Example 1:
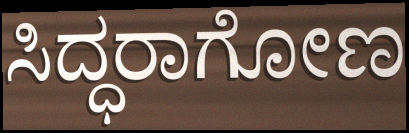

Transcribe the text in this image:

ಸಿದ್ಧರಾಗೋಣ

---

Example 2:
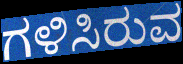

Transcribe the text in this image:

ಗಳಿಸಿರುವ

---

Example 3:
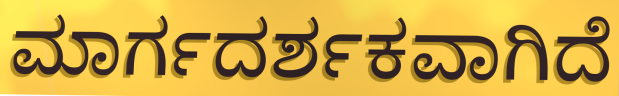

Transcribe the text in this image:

ಮಾರ್ಗದರ್ಶಕವಾಗಿದೆ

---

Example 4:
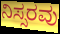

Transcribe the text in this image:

ನಿಸ್ಸರವು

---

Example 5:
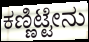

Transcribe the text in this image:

ಕಣ್ಣಿಟ್ಟೇನು